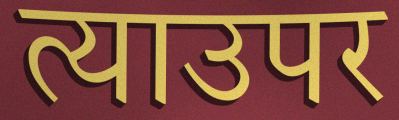
त्याउपर